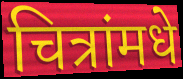
चित्रांमधे